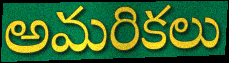
అమరికలు